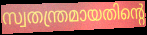
സ്വതന്ത്രമായതിന്റെ